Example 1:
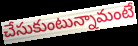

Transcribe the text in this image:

చేసుకుంటున్నామంటే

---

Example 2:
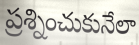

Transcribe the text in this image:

ప్రశ్నించుకునేలా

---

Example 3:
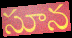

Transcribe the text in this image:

సూన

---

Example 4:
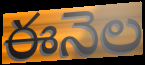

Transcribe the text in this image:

ఈనెల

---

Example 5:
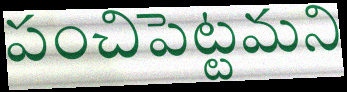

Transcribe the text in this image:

పంచిపెట్టమని